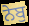
ਨੇਬੁ